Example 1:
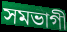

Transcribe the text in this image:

সমভাগী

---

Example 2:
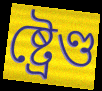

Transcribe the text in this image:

ষ্ট্ৰেণ্ড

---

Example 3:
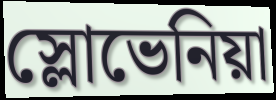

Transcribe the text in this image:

স্লোভেনিয়া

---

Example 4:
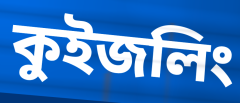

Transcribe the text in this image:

কুইজলিং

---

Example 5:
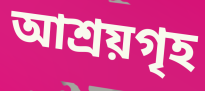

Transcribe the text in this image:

আশ্ৰয়গৃহ